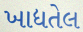
ખાદ્યતેલ